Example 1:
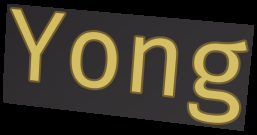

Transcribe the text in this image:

Yong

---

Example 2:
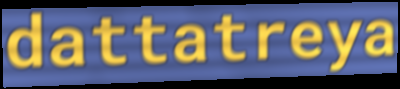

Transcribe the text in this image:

dattatreya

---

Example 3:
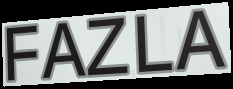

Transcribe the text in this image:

FAZLA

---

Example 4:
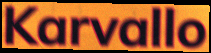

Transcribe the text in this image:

Karvallo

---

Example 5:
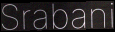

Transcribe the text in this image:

Srabani